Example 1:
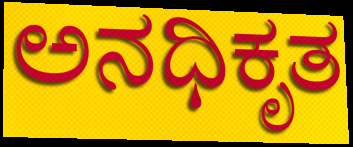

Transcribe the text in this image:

ಅನಧಿಕೃತ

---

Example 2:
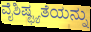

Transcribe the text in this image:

ವೈಶಿಷ್ಟ್ಯತೆಯನ್ನು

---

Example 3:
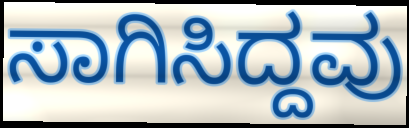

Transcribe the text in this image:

ಸಾಗಿಸಿದ್ದವು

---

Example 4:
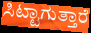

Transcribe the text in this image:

ಸಿಟ್ಟಾಗುತ್ತಾರೆ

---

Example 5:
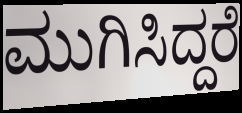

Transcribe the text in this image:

ಮುಗಿಸಿದ್ದರೆ